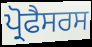
ਪ੍ਰੋਫੈਸਰਸ